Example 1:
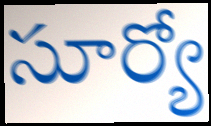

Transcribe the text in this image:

సూర్యో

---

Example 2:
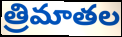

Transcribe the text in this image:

త్రిమాతల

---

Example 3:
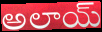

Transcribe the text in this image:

అలాయ్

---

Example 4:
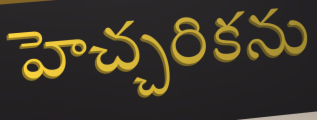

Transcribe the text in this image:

హెచ్చరికను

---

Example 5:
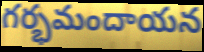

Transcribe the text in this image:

గర్భమందాయన